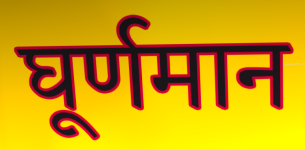
घूर्णमान